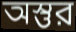
অস্তুর